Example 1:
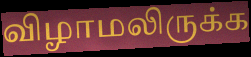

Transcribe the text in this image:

விழாமலிருக்க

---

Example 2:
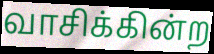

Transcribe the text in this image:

வாசிக்கின்ற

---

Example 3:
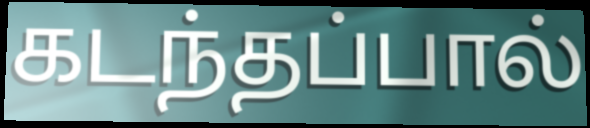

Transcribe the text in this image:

கடந்தப்பால்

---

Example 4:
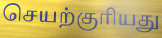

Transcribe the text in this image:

செயற்குரியது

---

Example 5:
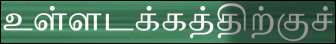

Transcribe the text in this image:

உள்ளடக்கத்திற்குச்